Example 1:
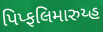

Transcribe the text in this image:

પિપ્ફલિમારુય્હ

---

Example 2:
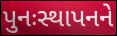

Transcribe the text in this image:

પુનઃસ્થાપનને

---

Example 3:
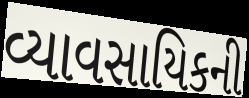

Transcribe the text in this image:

વ્યાવસાયિકની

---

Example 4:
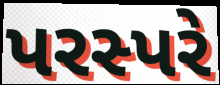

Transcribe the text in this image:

પરસ્પરે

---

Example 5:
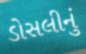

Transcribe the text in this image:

ડોસલીનું